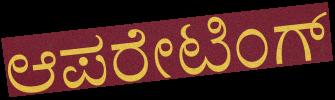
ಆಪರೇಟಿಂಗ್